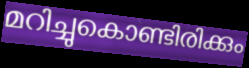
മറിച്ചുകൊണ്ടിരിക്കും